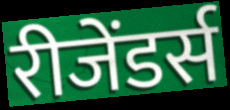
रीजेंडर्स